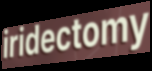
iridectomy